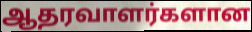
ஆதரவாளர்களான